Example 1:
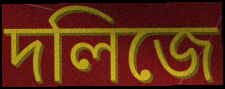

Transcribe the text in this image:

দলিজে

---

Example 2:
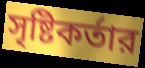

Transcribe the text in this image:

সৃষ্টিকর্তার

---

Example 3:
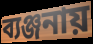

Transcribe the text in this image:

ব্যঞ্জনায়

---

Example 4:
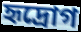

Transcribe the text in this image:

হৃদ্রোগ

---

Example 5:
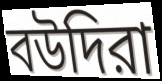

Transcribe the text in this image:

বউদিরা